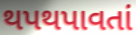
થપથપાવતાં